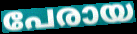
പേരായ